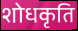
शोधकृति